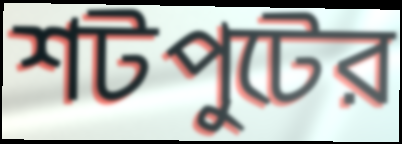
শটপুটের